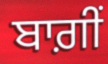
ਬਾਗ਼ੀਂ